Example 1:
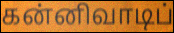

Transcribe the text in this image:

கன்னிவாடிப்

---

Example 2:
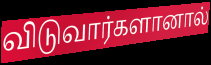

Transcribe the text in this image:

விடுவார்களானால்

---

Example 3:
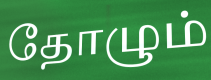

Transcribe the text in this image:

தோழும்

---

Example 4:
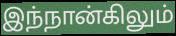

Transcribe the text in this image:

இந்நான்கிலும்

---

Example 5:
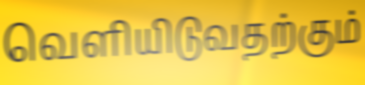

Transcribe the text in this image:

வெளியிடுவதற்கும்